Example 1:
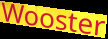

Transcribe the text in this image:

Wooster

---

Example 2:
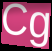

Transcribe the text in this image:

Cg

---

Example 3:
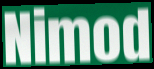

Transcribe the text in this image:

Nimod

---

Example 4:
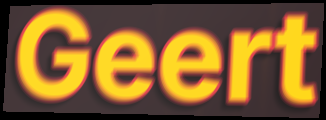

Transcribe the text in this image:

Geert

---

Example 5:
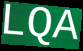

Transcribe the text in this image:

LQA